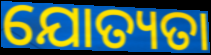
ଯୋତ୍ୟତା